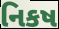
નિકષ